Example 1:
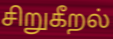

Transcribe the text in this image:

சிறுகீறல்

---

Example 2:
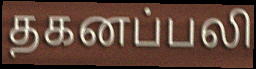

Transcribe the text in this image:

தகனப்பலி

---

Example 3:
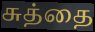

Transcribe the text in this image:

சுத்தை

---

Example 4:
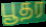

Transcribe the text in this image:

பூதர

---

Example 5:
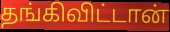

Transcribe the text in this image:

தங்கிவிட்டான்